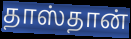
தாஸ்தான்